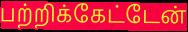
பற்றிக்கேட்டேன்